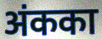
अंकका